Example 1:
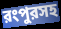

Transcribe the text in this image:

রংপুরসহ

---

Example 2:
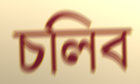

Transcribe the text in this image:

চলিব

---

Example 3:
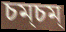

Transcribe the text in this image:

চম্চম্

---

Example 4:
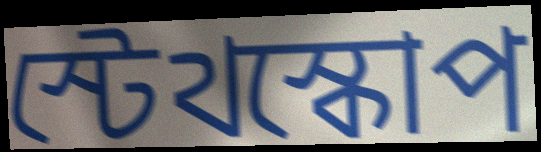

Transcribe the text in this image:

স্টেথস্কোপ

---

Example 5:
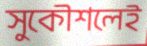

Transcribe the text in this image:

সুকৌশলেই